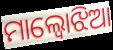
ମାଲ୍ବୋଝିଆ